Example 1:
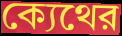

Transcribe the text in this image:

ক্যেথের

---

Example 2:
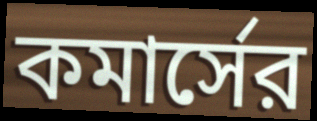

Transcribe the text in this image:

কমার্সের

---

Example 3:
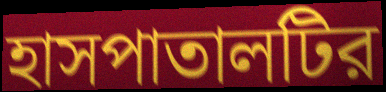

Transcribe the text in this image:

হাসপাতালটির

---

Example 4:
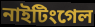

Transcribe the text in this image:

নাইটিংগেল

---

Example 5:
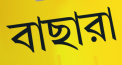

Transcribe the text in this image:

বাছারা